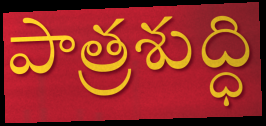
పాత్రశుద్ధి